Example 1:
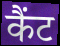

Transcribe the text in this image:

कैंट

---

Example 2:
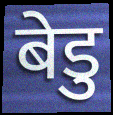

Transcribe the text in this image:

बेडु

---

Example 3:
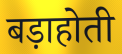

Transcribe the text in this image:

बड़ाहोती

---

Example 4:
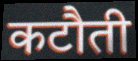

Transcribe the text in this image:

कटौती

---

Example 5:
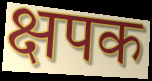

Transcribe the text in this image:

क्षपक